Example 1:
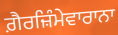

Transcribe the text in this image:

ਗ਼ੈਰਜ਼ਿੰਮੇਵਾਰਾਨਾ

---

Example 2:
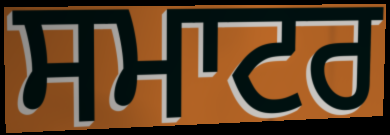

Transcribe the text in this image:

ਸਮਾਟਰ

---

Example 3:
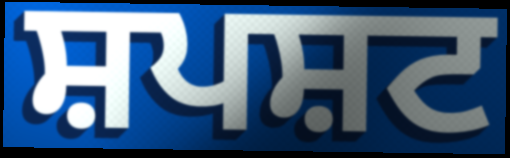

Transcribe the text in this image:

ਸ਼ਪਸ਼ਟ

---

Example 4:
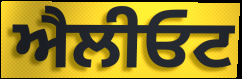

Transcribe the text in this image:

ਐਲੀਓਟ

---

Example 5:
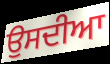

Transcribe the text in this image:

ਉਸਦੀਆ